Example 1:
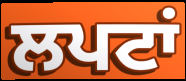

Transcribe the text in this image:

ਲਪਟਾਂ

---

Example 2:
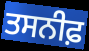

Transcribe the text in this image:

ਤਸਨੀਫ਼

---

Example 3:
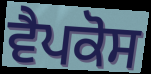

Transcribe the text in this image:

ਵੈਪਕੋਸ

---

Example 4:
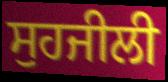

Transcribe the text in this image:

ਸੁਹਜੀਲੀ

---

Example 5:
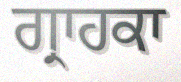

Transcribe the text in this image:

ਗ੍ਰਾਹਕਾ